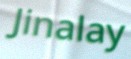
Jinalay